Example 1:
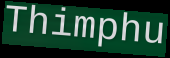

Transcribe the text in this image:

Thimphu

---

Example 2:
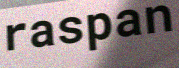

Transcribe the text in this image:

raspan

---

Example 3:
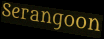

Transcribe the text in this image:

Serangoon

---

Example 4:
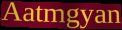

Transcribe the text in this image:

Aatmgyan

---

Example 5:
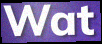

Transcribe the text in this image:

Wat